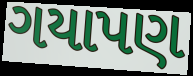
ગયાપણ